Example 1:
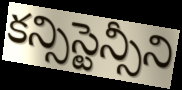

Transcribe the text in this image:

కన్సిస్టెన్సీని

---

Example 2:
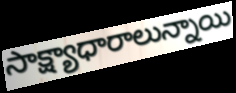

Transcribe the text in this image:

సాక్ష్యాధారాలున్నాయి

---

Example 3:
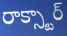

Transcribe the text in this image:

రాక్స్టార్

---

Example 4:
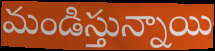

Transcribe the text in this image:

మండిస్తున్నాయి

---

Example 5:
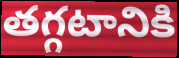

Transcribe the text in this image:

తగ్గటానికి